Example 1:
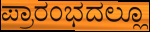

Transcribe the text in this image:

ಪ್ರಾರಂಭದಲ್ಲೂ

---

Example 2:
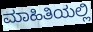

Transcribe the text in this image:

ಮಾಹಿತಿಯಲ್ಲಿ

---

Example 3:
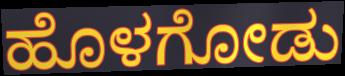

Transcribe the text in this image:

ಹೊಳಗೋಡು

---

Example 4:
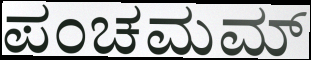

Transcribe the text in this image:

ಪಂಚಮಮ್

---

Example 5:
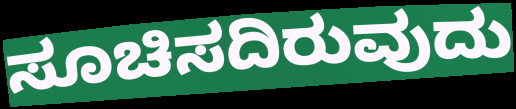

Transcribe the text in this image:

ಸೂಚಿಸದಿರುವುದು